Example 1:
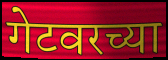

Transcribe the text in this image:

गेटवरच्या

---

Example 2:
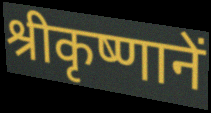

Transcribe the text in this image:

श्रीकृष्णानें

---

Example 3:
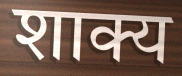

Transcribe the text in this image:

शाक्य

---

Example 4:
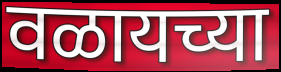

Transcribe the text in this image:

वळायच्या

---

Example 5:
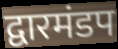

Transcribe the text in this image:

द्वारमंडप